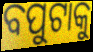
ବପୁଟାକୁ